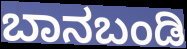
ಬಾನಬಂಡಿ